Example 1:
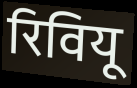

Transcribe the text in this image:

रिवियू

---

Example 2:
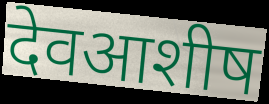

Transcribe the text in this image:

देवआशीष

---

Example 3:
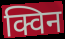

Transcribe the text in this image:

क्विन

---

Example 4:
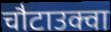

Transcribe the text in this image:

चौटाउक्वा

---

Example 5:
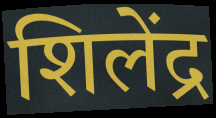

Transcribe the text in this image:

शिलेंद्र